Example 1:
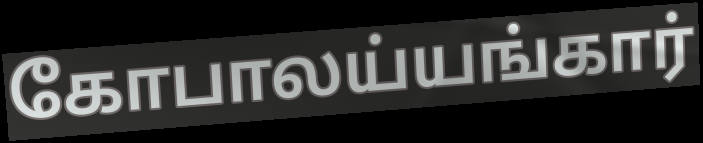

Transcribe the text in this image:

கோபாலய்யங்கார்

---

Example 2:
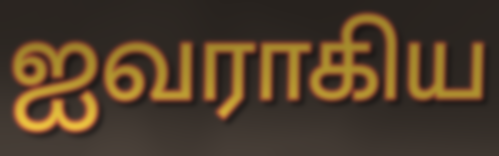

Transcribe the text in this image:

ஐவராகிய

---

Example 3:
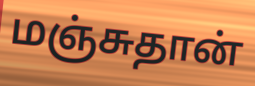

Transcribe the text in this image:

மஞ்சுதான்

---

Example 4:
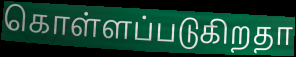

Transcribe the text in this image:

கொள்ளப்படுகிறதா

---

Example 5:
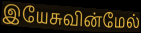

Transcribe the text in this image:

இயேசுவின்மேல்